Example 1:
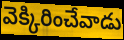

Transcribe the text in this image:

వెక్కిరించేవాడు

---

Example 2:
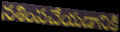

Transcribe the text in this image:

నశింపచేయడానికి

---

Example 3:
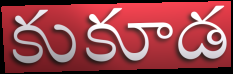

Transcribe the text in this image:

కుకూడ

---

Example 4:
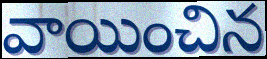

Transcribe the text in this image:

వాయించిన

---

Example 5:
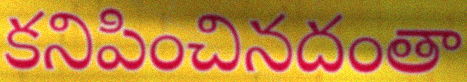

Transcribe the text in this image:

కనిపించినదంతా